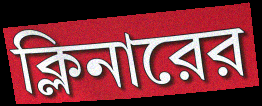
ক্লিনারের